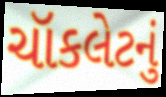
ચૉકલેટનું